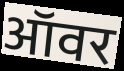
ऑवर